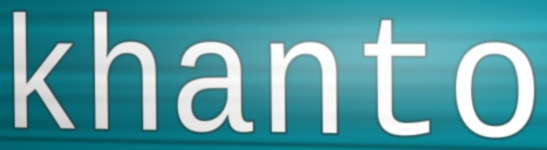
khanto